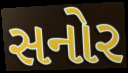
સનોર